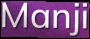
Manji